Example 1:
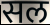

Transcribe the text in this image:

सल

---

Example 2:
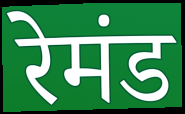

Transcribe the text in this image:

रेमंड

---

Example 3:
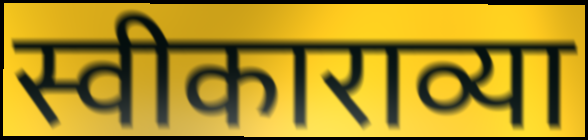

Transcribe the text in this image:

स्वीकाराव्या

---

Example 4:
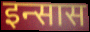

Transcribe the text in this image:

इन्सास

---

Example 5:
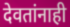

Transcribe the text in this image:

देवतांनाही